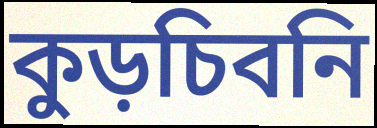
কুড়চিবনি